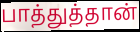
பாத்துத்தான்